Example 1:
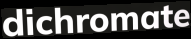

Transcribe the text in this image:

dichromate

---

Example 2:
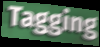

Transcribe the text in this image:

Tagging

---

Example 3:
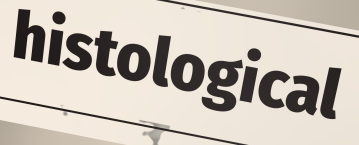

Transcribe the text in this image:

histological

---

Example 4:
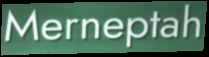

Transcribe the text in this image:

Merneptah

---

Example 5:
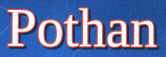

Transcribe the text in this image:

Pothan